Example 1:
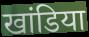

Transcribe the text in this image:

खांडिया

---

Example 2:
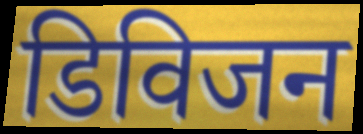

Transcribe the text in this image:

डिविजन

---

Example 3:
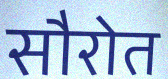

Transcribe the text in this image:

सौरोत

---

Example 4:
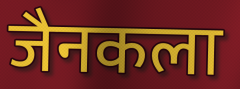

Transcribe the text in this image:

जैनकला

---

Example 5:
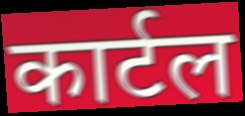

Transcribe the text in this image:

कार्टल